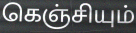
கெஞ்சியும்